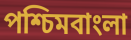
পশ্চিমবাংলা